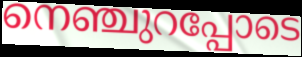
നെഞ്ചുറപ്പോടെ